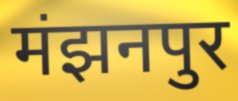
मंझनपुर